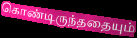
கொண்டிருந்ததையும்